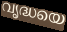
വൃദ്ധയെ